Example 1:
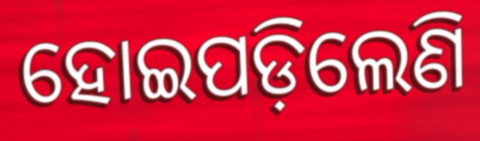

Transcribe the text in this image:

ହୋଇପଡ଼ିଲେଣି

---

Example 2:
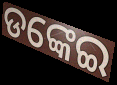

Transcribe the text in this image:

ଡଙ୍କେଇ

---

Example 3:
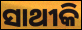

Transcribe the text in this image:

ସାଥୀକି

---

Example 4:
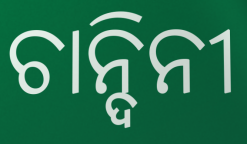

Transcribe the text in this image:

ଚାନ୍ଦିନୀ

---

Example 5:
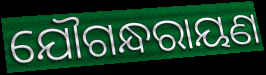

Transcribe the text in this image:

ଯୌଗନ୍ଧରାୟଣ